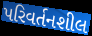
પરિવર્તનશીલ